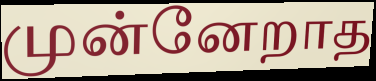
முன்னேறாத